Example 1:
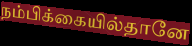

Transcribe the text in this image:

நம்பிக்கையில்தானே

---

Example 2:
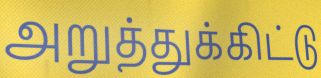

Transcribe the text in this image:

அறுத்துக்கிட்டு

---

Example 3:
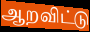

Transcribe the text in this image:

ஆறவிட்டு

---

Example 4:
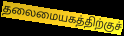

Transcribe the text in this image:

தலைமையகத்திற்குச்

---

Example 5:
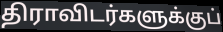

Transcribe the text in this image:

திராவிடர்களுக்குப்